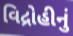
વિદ્રોહીનું